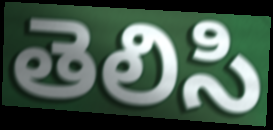
తెలిసి